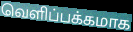
வெளிப்பக்கமாக